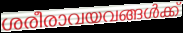
ശരീരാവയവങ്ങൾക്ക്